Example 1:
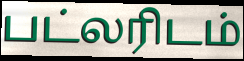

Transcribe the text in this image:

பட்லரிடம்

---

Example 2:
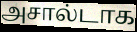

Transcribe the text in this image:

அசால்டாக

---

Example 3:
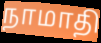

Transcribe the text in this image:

நாமாதி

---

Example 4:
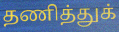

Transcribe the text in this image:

தணித்துக்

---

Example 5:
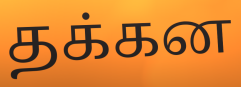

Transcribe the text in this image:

தக்கன